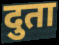
दुता